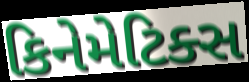
કિનેમેટિક્સ